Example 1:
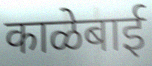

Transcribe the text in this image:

काळेबाई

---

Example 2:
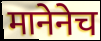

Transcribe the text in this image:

मानेनेच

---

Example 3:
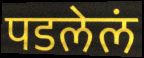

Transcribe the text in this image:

पडलेलं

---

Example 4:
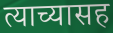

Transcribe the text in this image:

त्याच्यासह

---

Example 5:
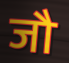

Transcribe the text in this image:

जौ